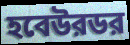
হবেউরডর